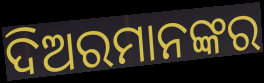
ଦିଅରମାନଙ୍କର